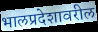
भालप्रदेशावरील